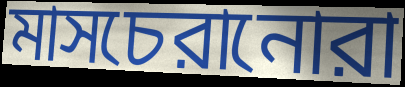
মাসচেরানোরা